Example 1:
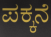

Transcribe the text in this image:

ಪಕ್ಕನೆ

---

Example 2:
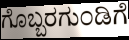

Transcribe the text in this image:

ಗೊಬ್ಬರಗುಂಡಿಗೆ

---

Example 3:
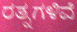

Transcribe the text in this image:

ರತ್ನಗಳಿವೆ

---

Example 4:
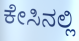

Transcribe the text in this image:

ಕೇಸಿನಲ್ಲಿ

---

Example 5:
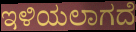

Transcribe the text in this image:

ಇಳಿಯಲಾಗದೆ